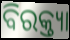
ବିରକ୍ତ୍ୟା